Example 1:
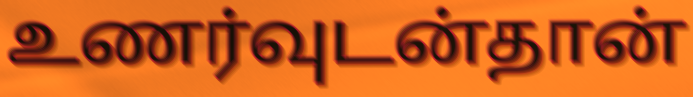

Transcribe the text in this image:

உணர்வுடன்தான்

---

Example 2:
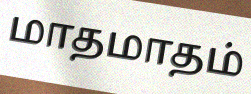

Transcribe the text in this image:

மாதமாதம்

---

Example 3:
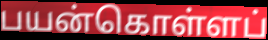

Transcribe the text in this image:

பயன்கொள்ளப்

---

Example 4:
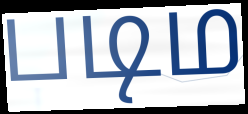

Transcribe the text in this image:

படிம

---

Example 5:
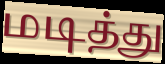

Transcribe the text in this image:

மடித்து